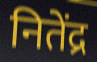
नितेंद्र